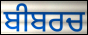
ਬੀਬਰਚ